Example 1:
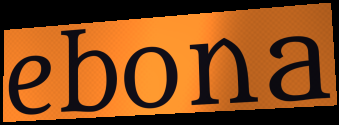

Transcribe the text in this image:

ebona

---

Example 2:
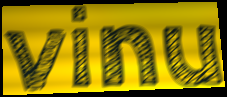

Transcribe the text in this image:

vinu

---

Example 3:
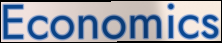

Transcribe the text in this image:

Economics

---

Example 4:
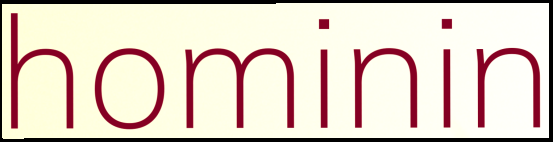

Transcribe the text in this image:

hominin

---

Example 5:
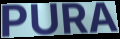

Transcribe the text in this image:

PURA